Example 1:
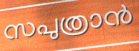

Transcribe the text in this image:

സപുത്രാൻ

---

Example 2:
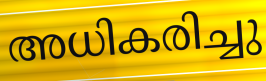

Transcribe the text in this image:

അധികരിച്ചു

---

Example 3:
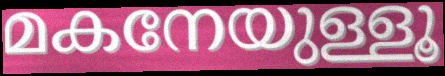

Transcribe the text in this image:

മകനേയുള്ളൂ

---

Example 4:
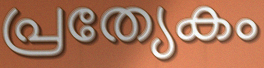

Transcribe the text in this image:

പ്രത്യേകം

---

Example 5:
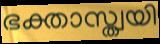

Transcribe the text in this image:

ഭക്താസ്ത്വയി